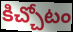
కిచ్చోటం